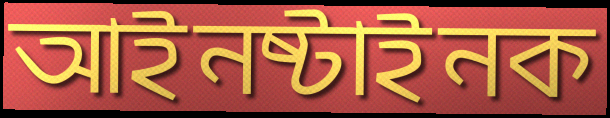
আইনষ্টাইনক